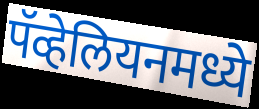
पॅव्हेलियनमध्ये